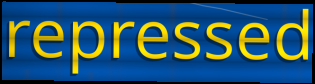
repressed